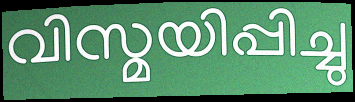
വിസ്മയിപ്പിച്ചു